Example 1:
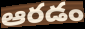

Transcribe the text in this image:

ఆరడం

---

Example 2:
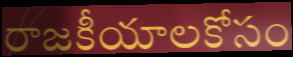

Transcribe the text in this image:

రాజకీయాలకోసం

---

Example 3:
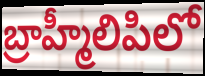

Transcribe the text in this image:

బ్రాహ్మీలిపిలో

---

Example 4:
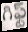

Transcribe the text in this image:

గిఫ్ట్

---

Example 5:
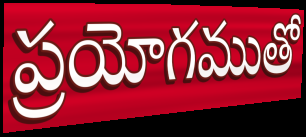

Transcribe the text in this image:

ప్రయోగముతో